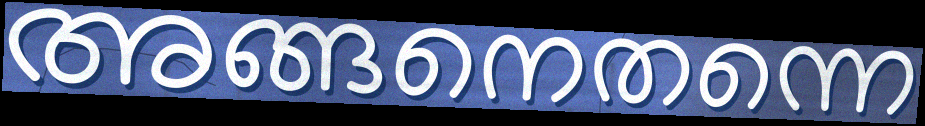
അങ്ങനെതന്നെ